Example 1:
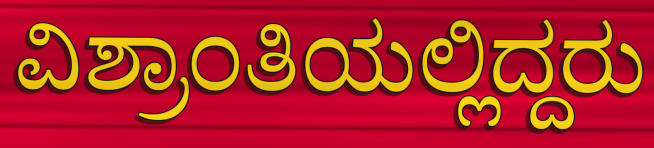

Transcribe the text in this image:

ವಿಶ್ರಾಂತಿಯಲ್ಲಿದ್ದರು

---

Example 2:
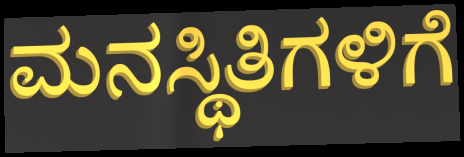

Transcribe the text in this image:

ಮನಸ್ಥಿತಿಗಳಿಗೆ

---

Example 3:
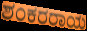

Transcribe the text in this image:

ಶಂಕರರಾಯ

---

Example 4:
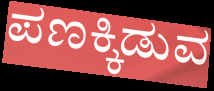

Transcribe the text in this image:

ಪಣಕ್ಕಿಡುವ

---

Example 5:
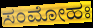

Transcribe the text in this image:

ಸಂಮೋಹಃ